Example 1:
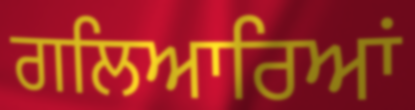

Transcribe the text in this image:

ਗਲਿਆਰਿਆਂ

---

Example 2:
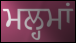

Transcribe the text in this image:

ਮਲ੍ਹਮਾਂ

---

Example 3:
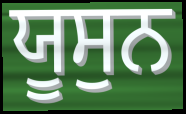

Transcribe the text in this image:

ਯੂਸੁਨ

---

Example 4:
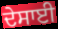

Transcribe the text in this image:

ਦੇਸਾਈ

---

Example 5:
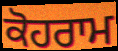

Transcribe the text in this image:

ਕੋਹਰਾਮ